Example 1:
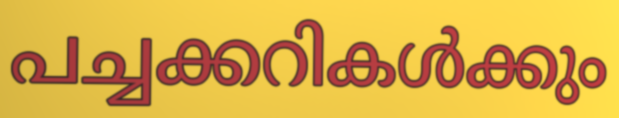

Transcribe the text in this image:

പച്ചക്കറികൾക്കും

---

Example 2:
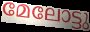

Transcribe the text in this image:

മേലോട്ടു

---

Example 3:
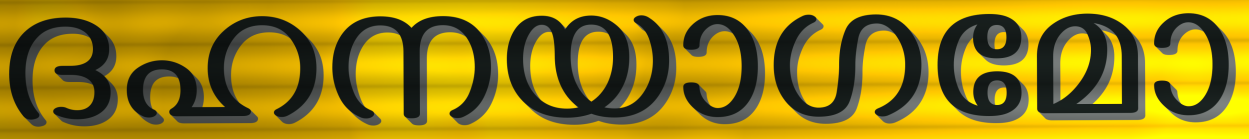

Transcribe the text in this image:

ദഹനയാഗമോ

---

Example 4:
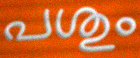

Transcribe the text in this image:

പശും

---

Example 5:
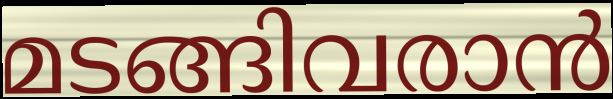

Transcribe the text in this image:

മടങ്ങിവരാൻ